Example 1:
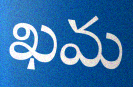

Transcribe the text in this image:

ఖమ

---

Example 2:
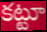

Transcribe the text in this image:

కట్టూ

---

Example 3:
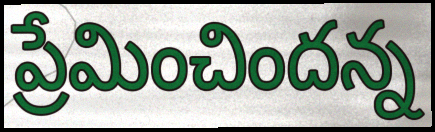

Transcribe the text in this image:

ప్రేమించిందన్న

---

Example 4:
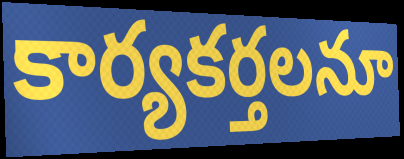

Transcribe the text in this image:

కార్యకర్తలనూ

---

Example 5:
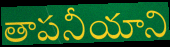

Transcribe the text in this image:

తాపనీయాని